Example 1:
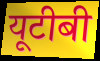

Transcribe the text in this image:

यूटीबी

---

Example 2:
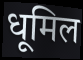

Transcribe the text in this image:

धूमिल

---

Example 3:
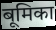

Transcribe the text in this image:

बूमिका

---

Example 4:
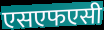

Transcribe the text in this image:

एसएफएसी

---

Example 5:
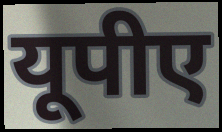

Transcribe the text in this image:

यूपीए